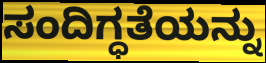
ಸಂದಿಗ್ಧತೆಯನ್ನು